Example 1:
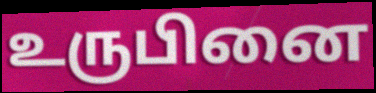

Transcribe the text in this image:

உருபினை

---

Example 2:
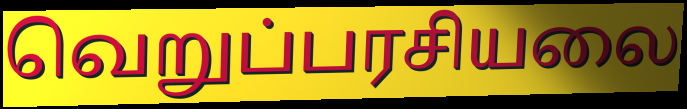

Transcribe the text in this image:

வெறுப்பரசியலை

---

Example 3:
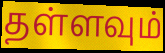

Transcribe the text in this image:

தள்ளவும்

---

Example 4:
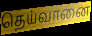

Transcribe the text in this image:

தெய்வானை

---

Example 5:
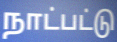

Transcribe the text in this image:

நாட்பட்டு